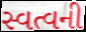
સ્વત્વની